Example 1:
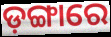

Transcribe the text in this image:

ଡ଼ଙ୍ଗାରେ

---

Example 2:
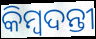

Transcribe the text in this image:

କିମ୍ଵଦନ୍ତୀ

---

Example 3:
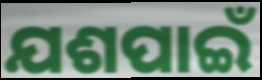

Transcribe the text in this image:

ଯଶପାଇଁ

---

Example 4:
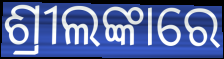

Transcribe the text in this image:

ଶ୍ରୀଲଙ୍କାରେ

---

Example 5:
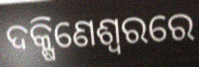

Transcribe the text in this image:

ଦକ୍ଷିଣେଶ୍ୱରରେ